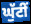
ਘੁੱਟੀਂ